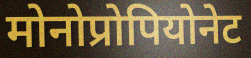
मोनोप्रोपियोनेट